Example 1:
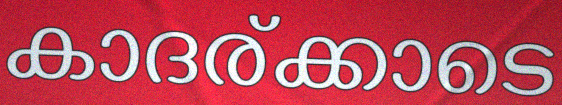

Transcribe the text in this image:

കാദര്ക്കാടെ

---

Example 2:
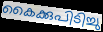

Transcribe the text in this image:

കൈക്കുപിടിച്ചു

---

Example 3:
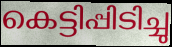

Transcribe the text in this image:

കെട്ടിപ്പിടിച്ചു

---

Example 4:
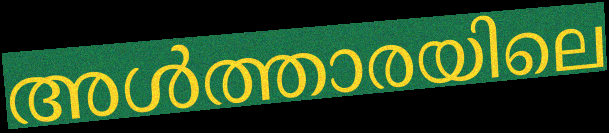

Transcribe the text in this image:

അൾത്താരയിലെ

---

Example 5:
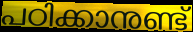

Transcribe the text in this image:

പഠിക്കാനുണ്ട്